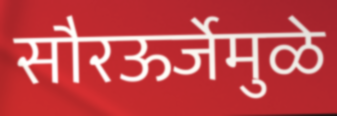
सौरऊर्जेमुळे